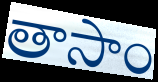
తాసాం